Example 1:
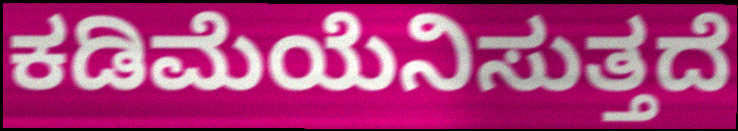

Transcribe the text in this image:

ಕಡಿಮೆಯೆನಿಸುತ್ತದೆ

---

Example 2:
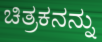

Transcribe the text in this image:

ಚಿತ್ರಕನನ್ನು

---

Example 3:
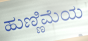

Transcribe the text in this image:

ಹುಣ್ಣಿಮೆಯ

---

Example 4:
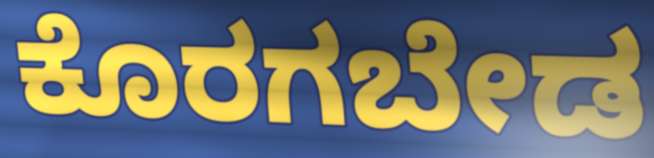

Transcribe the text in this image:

ಕೊರಗಬೇಡ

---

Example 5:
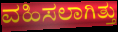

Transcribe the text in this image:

ವಹಿಸಲಾಗಿತ್ತು